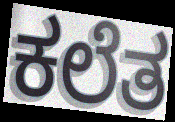
ಕಲೆತ